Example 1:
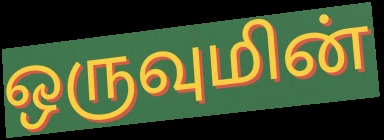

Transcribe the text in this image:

ஒருவுமின்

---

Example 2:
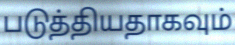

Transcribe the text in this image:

படுத்தியதாகவும்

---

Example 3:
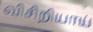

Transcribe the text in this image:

விசிறியாய்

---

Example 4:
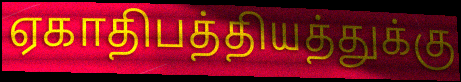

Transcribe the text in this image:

ஏகாதிபத்தியத்துக்கு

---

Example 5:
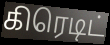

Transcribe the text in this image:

கிரெடிட்